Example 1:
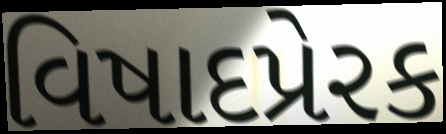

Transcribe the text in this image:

વિષાદપ્રેરક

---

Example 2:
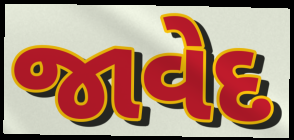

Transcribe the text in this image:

જાવેદ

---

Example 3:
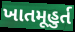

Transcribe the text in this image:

ખાતમૂહુર્ત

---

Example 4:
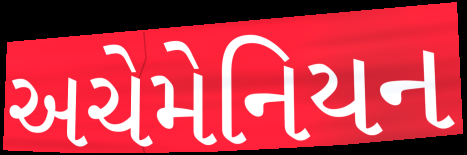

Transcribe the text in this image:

અચેમેનિયન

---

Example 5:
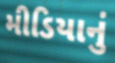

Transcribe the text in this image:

મીડિયાનું